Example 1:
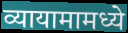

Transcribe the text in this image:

व्यायामामध्ये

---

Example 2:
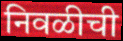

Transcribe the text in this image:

निवळीची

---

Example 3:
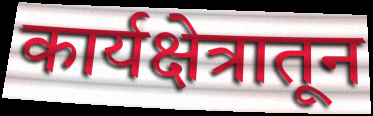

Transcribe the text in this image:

कार्यक्षेत्रातून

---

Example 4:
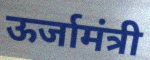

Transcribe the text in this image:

ऊर्जामंत्री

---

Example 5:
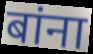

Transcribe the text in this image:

बांना